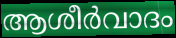
ആശീർവാദം